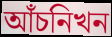
আঁচনিখন